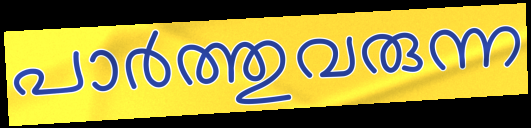
പാർത്തുവരുന്ന